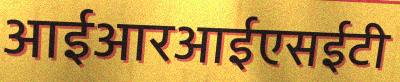
आईआरआईएसईटी